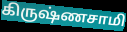
கிருஷ்ணசாமி